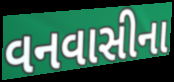
વનવાસીના